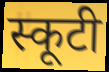
स्कूटी